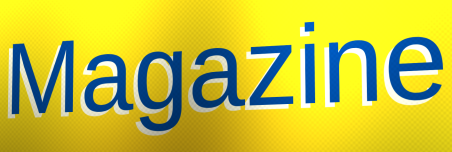
Magazine